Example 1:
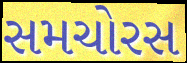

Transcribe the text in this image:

સમચોરસ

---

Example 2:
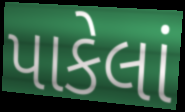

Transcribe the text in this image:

પાકેલાં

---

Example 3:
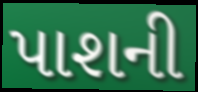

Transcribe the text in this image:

પાશની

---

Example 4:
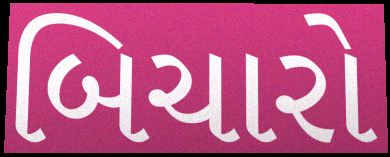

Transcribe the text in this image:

બિચારો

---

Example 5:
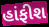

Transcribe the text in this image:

હાંફીશ